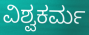
ವಿಶ್ವಕರ್ಮ